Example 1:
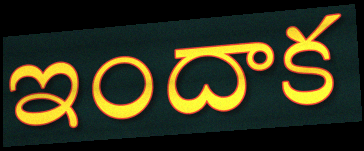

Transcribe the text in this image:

ఇందాక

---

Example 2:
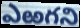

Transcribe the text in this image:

ఎఱగని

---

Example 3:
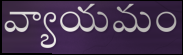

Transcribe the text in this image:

వ్యాయమం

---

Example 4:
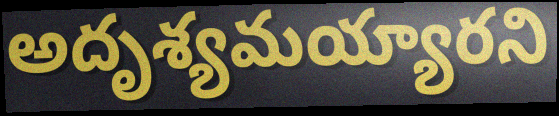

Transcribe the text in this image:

అదృశ్యమయ్యారని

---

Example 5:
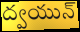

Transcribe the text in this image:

ద్వయున్